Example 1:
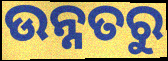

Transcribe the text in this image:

ଉନ୍ନତରୁ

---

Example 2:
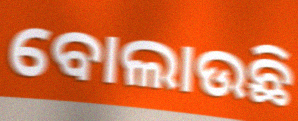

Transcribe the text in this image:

ବୋଲାଉଛି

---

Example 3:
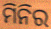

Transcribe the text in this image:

ମିନିର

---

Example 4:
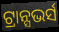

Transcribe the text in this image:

ଟ୍ରାନ୍ସଭର୍ସ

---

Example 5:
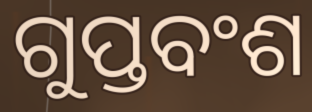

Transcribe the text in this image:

ଗୁପ୍ତବଂଶ